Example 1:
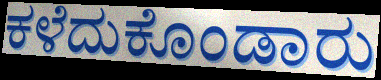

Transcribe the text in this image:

ಕಳೆದುಕೊಂಡಾರು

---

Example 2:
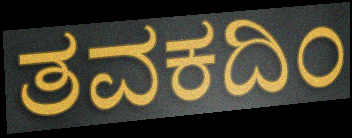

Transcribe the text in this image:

ತವಕದಿಂ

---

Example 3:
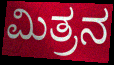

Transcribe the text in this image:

ಮಿತ್ರನ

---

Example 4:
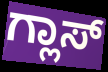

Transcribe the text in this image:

ಗ್ಲಾಸ್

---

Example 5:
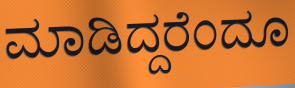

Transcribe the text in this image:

ಮಾಡಿದ್ದರೆಂದೂ